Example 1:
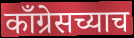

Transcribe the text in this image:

काँग्रेसच्याच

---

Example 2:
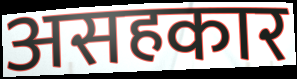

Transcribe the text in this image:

असहकार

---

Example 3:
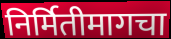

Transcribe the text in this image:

निर्मितीमागचा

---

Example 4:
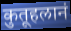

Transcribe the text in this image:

कुतूहलानं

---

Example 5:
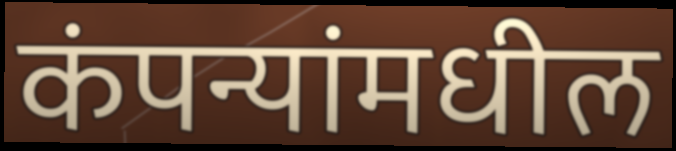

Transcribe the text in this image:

कंपन्यांमधील